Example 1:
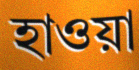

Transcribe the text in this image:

হাওয়া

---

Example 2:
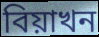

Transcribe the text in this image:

বিয়াখন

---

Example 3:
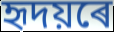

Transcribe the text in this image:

হৃদয়ৰে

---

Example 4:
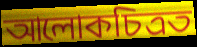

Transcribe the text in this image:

আলোকচিত্ৰত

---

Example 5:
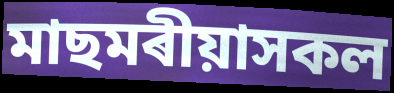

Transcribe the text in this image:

মাছমৰীয়াসকল